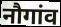
नौगांव